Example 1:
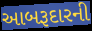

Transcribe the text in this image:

આબરૂદારની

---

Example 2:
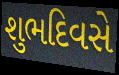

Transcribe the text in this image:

શુભદિવસે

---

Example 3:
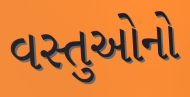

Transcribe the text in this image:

વસ્તુઓનો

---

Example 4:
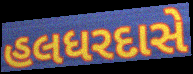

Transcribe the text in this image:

હલધરદાસે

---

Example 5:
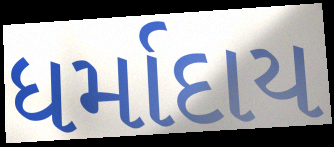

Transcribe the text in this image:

ધર્માદાય